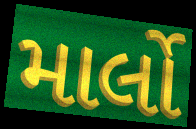
માર્લો